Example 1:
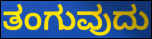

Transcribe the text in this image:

ತಂಗುವುದು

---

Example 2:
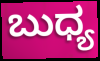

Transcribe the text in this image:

ಬುಧ್ಯ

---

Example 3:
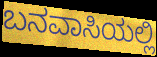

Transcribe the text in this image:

ಬನವಾಸಿಯಲ್ಲಿ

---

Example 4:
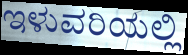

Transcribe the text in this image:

ಇಳುವರಿಯಲ್ಲಿ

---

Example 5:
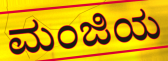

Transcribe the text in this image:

ಮಂಜಿಯ